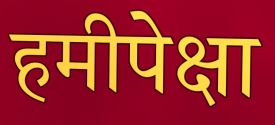
हमीपेक्षा